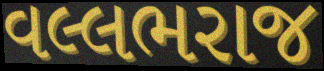
વલ્લભરાજ